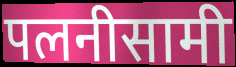
पलनीसामी